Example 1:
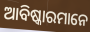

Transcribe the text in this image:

ଆବିଷ୍କାରମାନେ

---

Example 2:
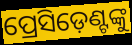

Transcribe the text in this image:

ପ୍ରେସିଡ଼େଣ୍ଟଙ୍କୁ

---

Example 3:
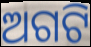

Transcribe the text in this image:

ଅଗଟି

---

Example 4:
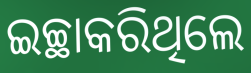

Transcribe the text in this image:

ଇଚ୍ଛାକରିଥିଲେ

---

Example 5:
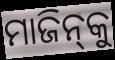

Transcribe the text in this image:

ମାଜିନ୍‌କୁ